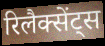
रिलैक्सेंट्स